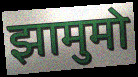
झामुमो